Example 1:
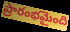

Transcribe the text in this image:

ప్రారంభమైంది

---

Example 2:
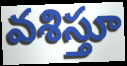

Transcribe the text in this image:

వశిస్తూ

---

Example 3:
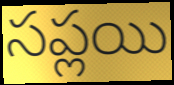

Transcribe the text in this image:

సప్లయి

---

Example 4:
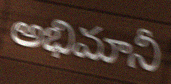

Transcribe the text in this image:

అభిమానీ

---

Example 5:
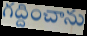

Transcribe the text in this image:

గద్దించాను